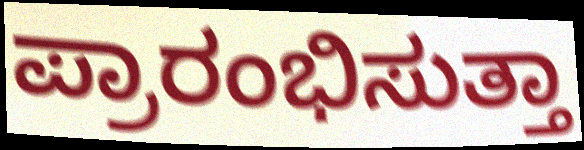
ಪ್ರಾರಂಭಿಸುತ್ತಾ